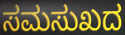
ಸಮಸುಖದ